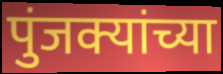
पुंजक्यांच्या